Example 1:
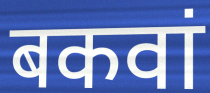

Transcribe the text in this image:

बकवां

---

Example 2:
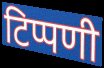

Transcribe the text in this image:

टिप्‍पणी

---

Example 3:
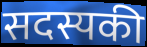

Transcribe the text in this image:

सदस्यकी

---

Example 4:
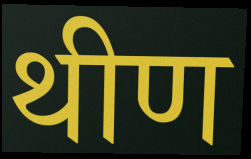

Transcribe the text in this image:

थीण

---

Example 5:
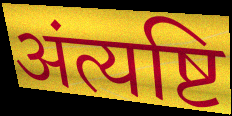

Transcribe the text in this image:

अंत्यष्टि